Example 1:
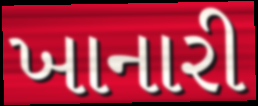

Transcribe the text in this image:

ખાનારી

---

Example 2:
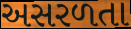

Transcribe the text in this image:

અસરળતા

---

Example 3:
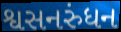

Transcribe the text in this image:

શ્વસનરુંધન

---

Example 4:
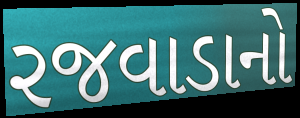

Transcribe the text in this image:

રજવાડાનો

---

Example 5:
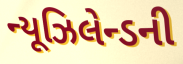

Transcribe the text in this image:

ન્યૂઝિલેન્ડની